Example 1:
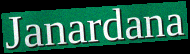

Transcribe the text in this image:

Janardana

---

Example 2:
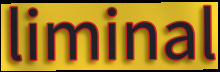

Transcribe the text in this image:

liminal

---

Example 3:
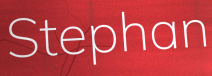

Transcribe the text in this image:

Stephan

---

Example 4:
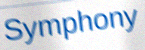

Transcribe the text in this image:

Symphony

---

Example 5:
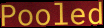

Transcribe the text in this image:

Pooled